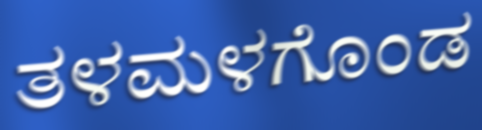
ತಳಮಳಗೊಂಡ